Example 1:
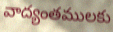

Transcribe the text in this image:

వాద్యంతములకు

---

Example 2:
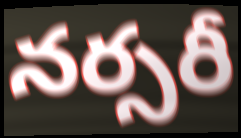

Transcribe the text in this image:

నర్సరీ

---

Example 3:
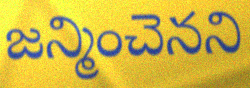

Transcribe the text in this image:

జన్మించెనని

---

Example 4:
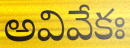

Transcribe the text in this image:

అవివేకః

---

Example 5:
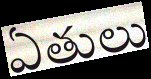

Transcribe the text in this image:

ఏతులు